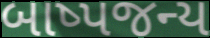
બાષ્પજન્ય